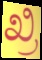
ಖ್ರಿ